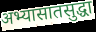
अभ्यासातसुद्धा